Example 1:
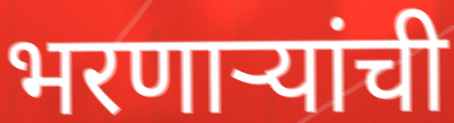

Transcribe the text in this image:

भरणाऱ्यांची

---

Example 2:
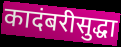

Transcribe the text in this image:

कादंबरीसुद्धा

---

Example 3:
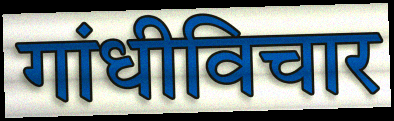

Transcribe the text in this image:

गांधीविचार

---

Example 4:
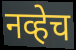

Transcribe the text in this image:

नव्हेच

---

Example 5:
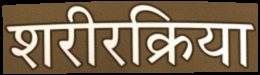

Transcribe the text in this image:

शरीरक्रिया